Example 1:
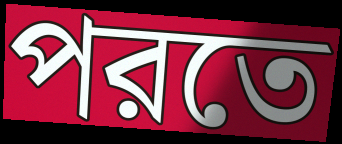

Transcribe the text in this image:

পরতে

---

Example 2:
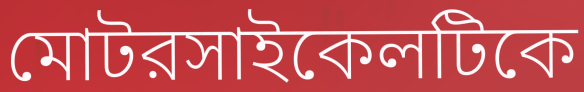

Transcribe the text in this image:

মোটরসাইকেলটিকে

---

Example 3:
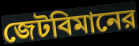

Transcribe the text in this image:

জেটবিমানের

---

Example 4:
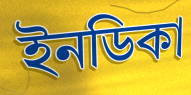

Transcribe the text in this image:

ইনডিকা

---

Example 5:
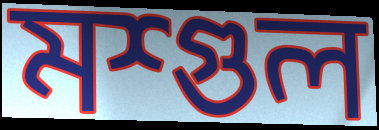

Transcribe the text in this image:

মশ্গুল